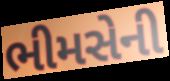
ભીમસેની